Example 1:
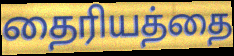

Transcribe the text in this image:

தைரியத்தை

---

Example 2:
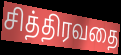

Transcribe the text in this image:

சித்திரவதை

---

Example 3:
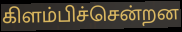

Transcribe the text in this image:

கிளம்பிச்சென்றன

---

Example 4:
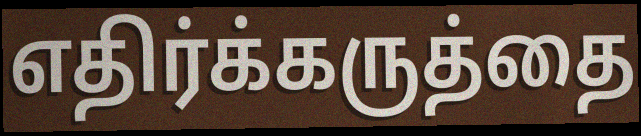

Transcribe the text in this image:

எதிர்க்கருத்தை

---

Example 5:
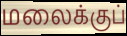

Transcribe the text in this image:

மலைக்குப்